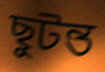
ছুটন্ত